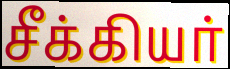
சீக்கியர்